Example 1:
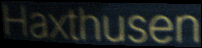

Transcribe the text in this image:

Haxthusen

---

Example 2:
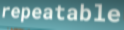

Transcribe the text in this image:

repeatable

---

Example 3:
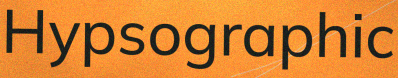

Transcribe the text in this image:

Hypsographic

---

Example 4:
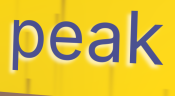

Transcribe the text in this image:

peak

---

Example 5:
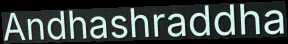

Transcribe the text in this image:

Andhashraddha